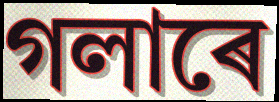
গলাৰে